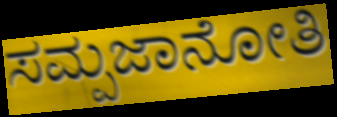
ಸಮ್ಪಜಾನೋತಿ